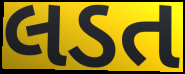
લડત